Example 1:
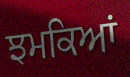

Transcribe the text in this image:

ਝਮਕਿਆਂ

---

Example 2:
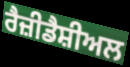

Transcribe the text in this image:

ਰੈਜ਼ੀਡੈਸ਼ੀਅਲ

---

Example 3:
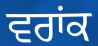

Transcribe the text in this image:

ਵਰਾਂਕ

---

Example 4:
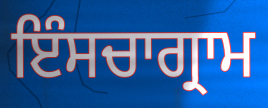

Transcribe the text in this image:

ਇੰਸਚਾਗ੍ਰਾਮ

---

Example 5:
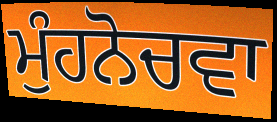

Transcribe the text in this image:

ਮੁੰਹਨੋਚਵਾ